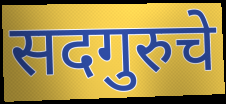
सदगुरुचे